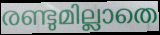
രണ്ടുമില്ലാതെ